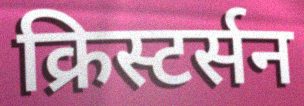
क्रिस्टर्सन